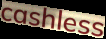
cashless